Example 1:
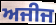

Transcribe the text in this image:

ਅਜੀਜ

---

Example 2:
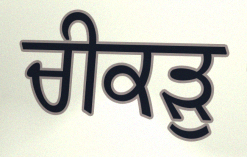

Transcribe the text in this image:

ਚੀਕੜੁ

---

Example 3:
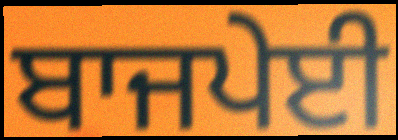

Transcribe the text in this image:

ਬਾਜਪੇਈ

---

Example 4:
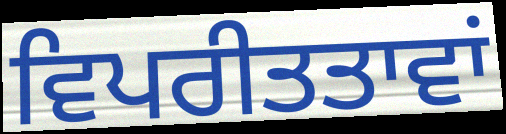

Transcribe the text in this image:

ਵਿਪਰੀਤਤਾਵਾਂ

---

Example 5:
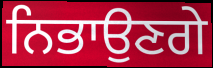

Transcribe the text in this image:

ਨਿਭਾਉਣਗੇ